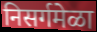
निसर्गमेळा